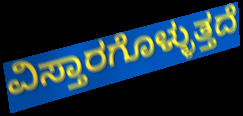
ವಿಸ್ತಾರಗೊಳ್ಳುತ್ತದೆ